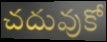
చదువుకో